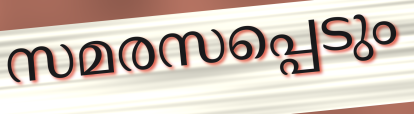
സമരസപ്പെടും